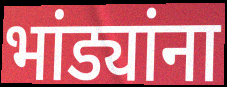
भांड्यांना